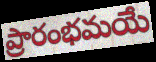
ప్రారంభమయే